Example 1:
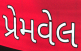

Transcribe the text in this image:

પ્રેમવેલ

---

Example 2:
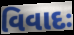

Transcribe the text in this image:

વિવાદઃ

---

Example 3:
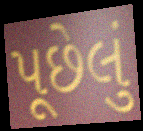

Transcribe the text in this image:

પૂછેલું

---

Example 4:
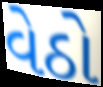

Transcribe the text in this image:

વેઠો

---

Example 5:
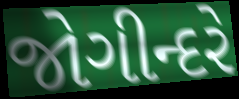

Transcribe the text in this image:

જોગીન્દરે